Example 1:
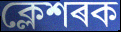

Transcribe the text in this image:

ক্লেশৰক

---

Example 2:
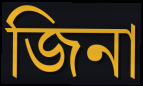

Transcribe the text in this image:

জিনা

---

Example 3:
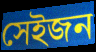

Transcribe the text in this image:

সেইজন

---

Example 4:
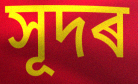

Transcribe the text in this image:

সূদৰ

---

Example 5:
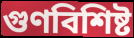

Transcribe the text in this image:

গুণবিশিষ্ট